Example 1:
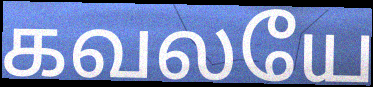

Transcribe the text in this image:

கவலயே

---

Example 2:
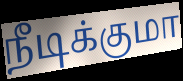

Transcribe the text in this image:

நீடிக்குமா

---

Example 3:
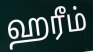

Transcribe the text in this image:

ஹரீம்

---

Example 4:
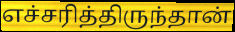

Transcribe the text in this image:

எச்சரித்திருந்தான்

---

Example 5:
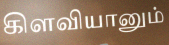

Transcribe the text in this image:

கிளவியானும்